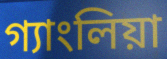
গ্যাংলিয়া